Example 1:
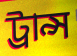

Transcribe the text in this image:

ট্ৰান্স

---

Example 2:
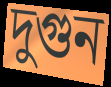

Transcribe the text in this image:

দুগুন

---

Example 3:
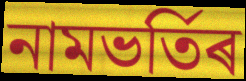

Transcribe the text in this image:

নামভৰ্তিৰ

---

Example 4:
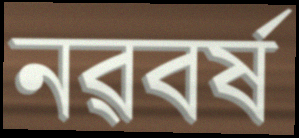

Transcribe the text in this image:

নৱবৰ্ষ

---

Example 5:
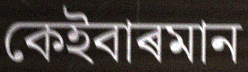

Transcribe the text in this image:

কেইবাৰমান